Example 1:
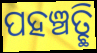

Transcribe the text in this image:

ପହଞ୍ଚତ୍ଛି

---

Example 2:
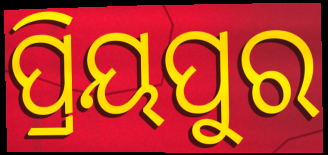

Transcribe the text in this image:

ପ୍ରିୟପୁର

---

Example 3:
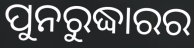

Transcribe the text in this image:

ପୁନରୁଦ୍ଧାରର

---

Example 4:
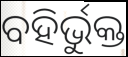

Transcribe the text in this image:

ବହିର୍ଭୁକ୍ତ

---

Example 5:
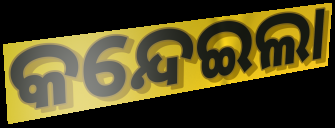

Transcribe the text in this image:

କନ୍ଦେଇଲା